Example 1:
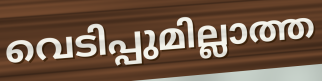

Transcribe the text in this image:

വെടിപ്പുമില്ലാത്ത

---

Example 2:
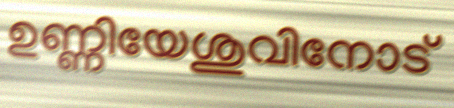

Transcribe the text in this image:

ഉണ്ണിയേശുവിനോട്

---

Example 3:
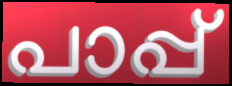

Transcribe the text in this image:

പാപ്പ്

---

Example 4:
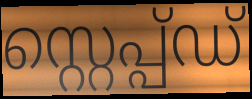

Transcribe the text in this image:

സ്റ്റെപ്പ്ഡ്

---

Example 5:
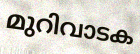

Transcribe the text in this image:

മുറിവാടക